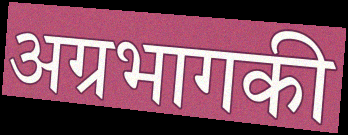
अग्रभागकी